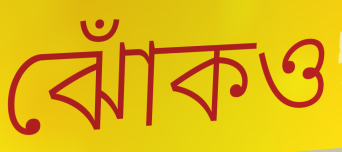
ঝোঁকও